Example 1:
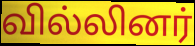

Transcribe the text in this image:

வில்லினர்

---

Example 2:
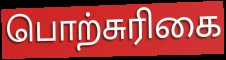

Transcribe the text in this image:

பொற்சுரிகை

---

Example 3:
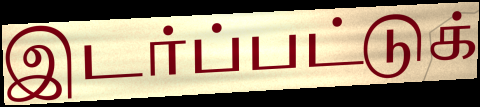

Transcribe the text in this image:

இடர்ப்பட்டுக்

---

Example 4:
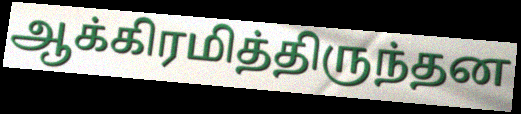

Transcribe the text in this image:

ஆக்கிரமித்திருந்தன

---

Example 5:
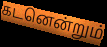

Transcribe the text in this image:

கடனென்றும்